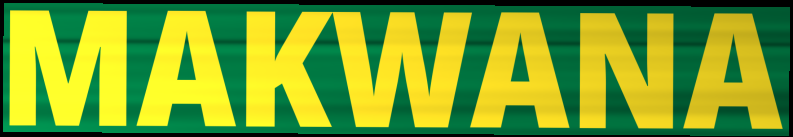
MAKWANA